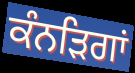
ਕੰਨੜਿਗਾਂ